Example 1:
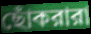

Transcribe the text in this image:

ছোঁকরারা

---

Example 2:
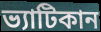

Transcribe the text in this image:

ভ্যাটিকান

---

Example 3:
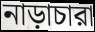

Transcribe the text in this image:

নাড়াচারা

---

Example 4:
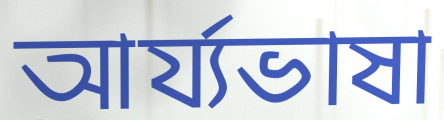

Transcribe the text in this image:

আর্য্যভাষা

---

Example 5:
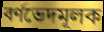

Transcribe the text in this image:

বর্ণভেদমূলক